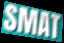
SMAT